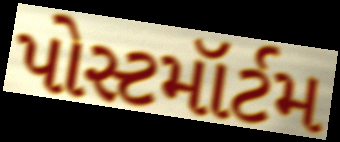
પોસ્ટમૉર્ટમ